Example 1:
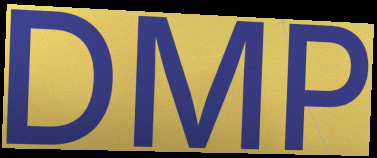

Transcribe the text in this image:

DMP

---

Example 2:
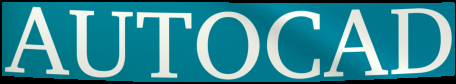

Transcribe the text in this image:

AUTOCAD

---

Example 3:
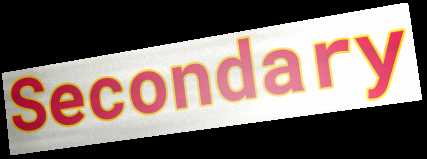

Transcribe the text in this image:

Secondary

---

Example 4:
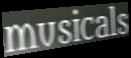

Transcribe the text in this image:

musicals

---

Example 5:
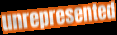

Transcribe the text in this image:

unrepresented